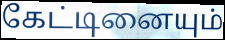
கேட்டினையும்